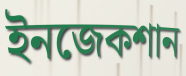
ইনজেকশান